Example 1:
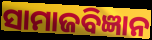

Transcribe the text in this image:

ସାମାଜବିଜ୍ଞାନ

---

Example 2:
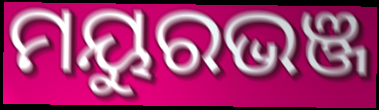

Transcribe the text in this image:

ମୟୁରଭଞ୍ଜ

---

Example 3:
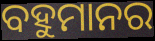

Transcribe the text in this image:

ବହୁମାନର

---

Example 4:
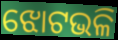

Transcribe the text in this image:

ଝୋଟଭଳି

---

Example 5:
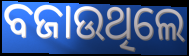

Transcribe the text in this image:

ବଜାଉଥିଲେ